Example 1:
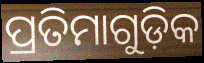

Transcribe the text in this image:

ପ୍ରତିମାଗୁଡ଼ିକ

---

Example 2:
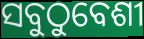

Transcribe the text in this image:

ସବୁଠୁବେଶୀ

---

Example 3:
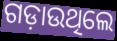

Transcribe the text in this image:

ଗଡ଼ାଉଥିଲେ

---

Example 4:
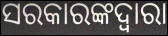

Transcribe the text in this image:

ସରକାରଙ୍କଦ୍ବାରା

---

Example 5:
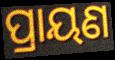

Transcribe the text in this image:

ପ୍ରାୟଣ